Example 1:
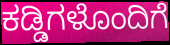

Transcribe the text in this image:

ಕಡ್ಡಿಗಳೊಂದಿಗೆ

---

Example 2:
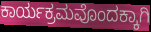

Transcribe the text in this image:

ಕಾರ್ಯಕ್ರಮವೊಂದಕ್ಕಾಗಿ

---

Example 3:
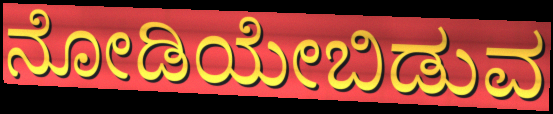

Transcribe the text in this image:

ನೋಡಿಯೇಬಿಡುವ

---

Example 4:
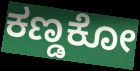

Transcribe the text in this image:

ಕಣ್ಡಕೋ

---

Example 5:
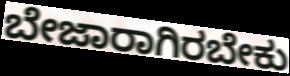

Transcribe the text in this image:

ಬೇಜಾರಾಗಿರಬೇಕು